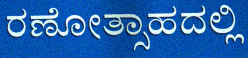
ರಣೋತ್ಸಾಹದಲ್ಲಿ